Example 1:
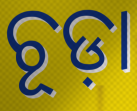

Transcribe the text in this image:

ଚୂଡ଼ା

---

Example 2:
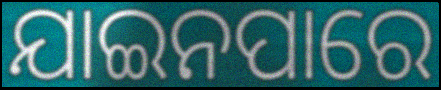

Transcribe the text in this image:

ଯାଇନପାରେ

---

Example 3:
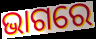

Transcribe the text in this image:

ଭାଗରେ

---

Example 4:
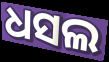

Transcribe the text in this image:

ଧସଲ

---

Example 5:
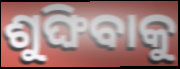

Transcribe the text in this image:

ଶୁଙ୍ଘିବାକୁ